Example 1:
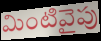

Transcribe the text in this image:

మింటివైపు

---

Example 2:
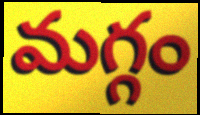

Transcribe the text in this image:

మగ్గం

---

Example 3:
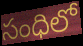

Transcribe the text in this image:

సంధిలో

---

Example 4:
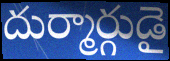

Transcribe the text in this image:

దుర్మార్గుడై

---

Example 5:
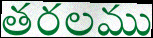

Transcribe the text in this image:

తరలము